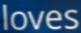
loves